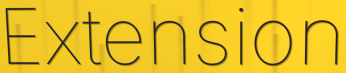
Extension